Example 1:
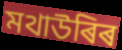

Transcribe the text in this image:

মথাউৰিৰ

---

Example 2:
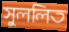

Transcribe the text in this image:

সুললিত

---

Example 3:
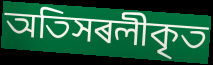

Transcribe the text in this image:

অতিসৰলীকৃত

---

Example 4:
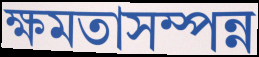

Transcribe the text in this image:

ক্ষমতাসম্পন্ন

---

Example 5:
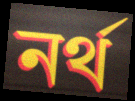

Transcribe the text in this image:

নৰ্থ